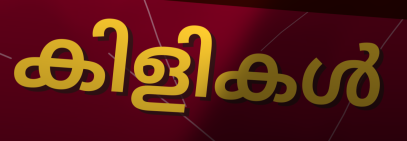
കിളികൾ